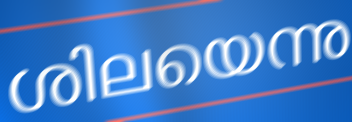
ശിലയെന്നു